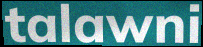
talawni